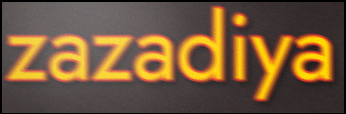
zazadiya